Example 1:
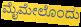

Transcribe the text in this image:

ಮೈಮೇಲೊಂದು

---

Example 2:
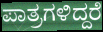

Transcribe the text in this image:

ಪಾತ್ರಗಳಿದ್ದರೆ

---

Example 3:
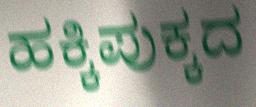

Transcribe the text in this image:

ಹಕ್ಕಿಪುಕ್ಕದ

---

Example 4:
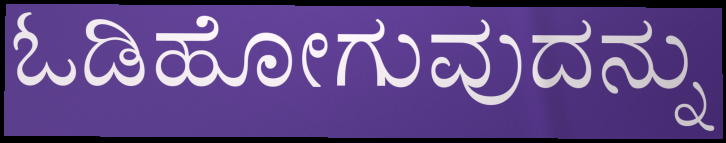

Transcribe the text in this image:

ಓಡಿಹೋಗುವುದನ್ನು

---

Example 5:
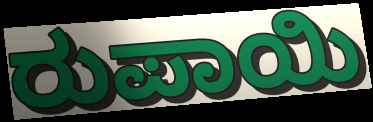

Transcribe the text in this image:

ರುಪಾಯಿ